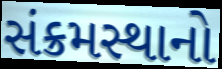
સંક્રમસ્થાનો